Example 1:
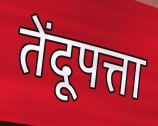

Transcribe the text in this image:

तेंदूपत्ता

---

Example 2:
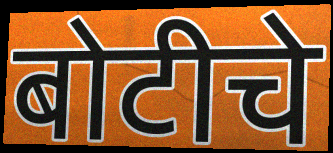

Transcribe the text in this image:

बोटीचे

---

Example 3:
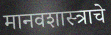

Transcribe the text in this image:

मानवशास्त्राचे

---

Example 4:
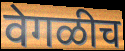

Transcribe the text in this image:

वेगळीच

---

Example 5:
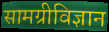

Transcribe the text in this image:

सामग्रीविज्ञान